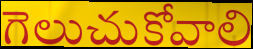
గెలుచుకోవాలి